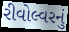
રીવોલ્વરનું